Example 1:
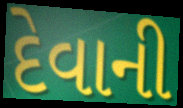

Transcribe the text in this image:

દેવાની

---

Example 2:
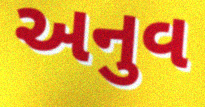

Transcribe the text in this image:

અનુવ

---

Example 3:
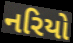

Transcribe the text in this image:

નરિયો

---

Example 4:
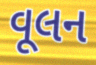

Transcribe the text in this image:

વૂલન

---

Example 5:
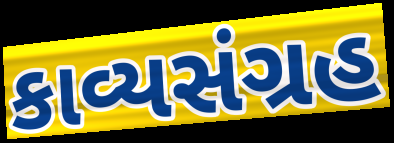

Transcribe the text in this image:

કાવ્યસંગ્રહ